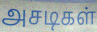
அசடிகள்